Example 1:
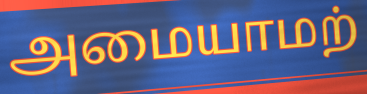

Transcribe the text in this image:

அமையாமற்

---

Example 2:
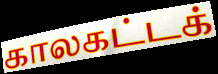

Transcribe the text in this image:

காலகட்டக்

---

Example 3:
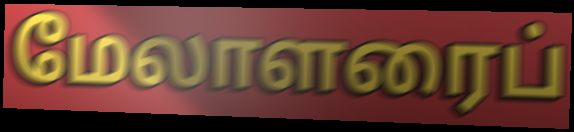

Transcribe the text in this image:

மேலாளரைப்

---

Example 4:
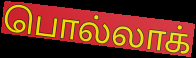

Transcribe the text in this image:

பொல்லாக்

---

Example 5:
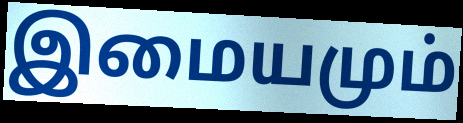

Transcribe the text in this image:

இமையமும்